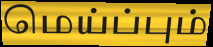
மெய்ப்பும்